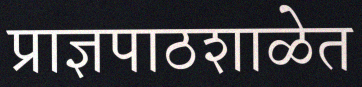
प्राज्ञपाठशाळेत